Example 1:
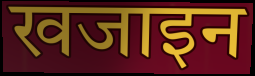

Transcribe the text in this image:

खजाइन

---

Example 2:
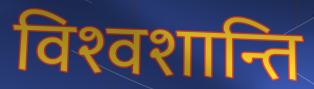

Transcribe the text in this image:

विश्वशान्ति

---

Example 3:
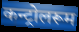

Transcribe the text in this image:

कन्ट्रोलरूम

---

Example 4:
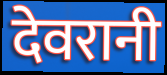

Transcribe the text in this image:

देवरानी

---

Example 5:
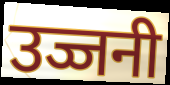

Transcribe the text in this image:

उज्जनी